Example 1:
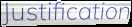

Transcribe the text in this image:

Justification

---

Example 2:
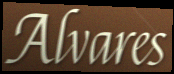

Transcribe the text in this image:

Alvares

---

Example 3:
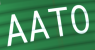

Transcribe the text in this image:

AATO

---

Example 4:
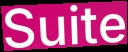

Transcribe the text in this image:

Suite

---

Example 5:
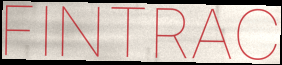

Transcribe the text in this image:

FINTRAC